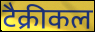
टैक्रीकल